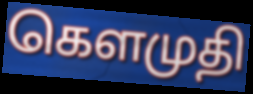
கௌமுதி